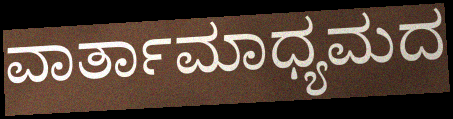
ವಾರ್ತಾಮಾಧ್ಯಮದ